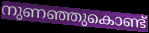
നുണഞ്ഞുകൊണ്ട്